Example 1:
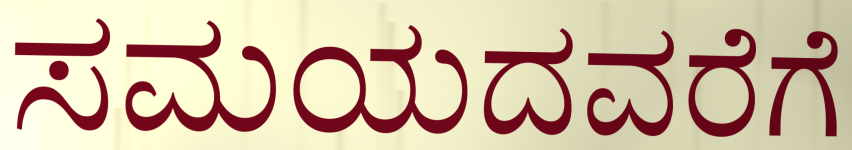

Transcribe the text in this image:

ಸಮಯದವರೆಗೆ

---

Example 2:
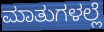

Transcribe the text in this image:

ಮಾತುಗಳಲ್ಲೆ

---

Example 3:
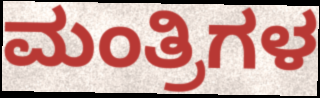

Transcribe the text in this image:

ಮಂತ್ರಿಗಳ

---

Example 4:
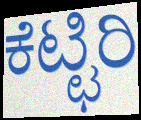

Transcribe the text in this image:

ಕೆಟ್ಟಿರಿ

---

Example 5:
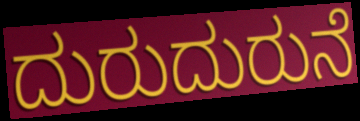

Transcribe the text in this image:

ದುರುದುರುನೆ